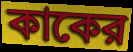
কাকের